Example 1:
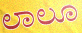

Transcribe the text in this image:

ಲಾಲೂ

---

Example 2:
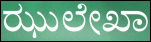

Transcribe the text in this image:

ಝುಲೇಖಾ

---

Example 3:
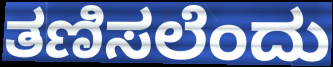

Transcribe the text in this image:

ತಣಿಸಲೆಂದು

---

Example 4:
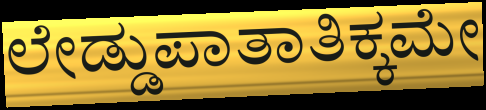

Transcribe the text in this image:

ಲೇಡ್ಡುಪಾತಾತಿಕ್ಕಮೇ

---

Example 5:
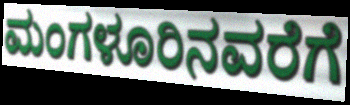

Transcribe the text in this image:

ಮಂಗಳೂರಿನವರೆಗೆ